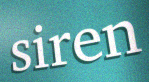
siren